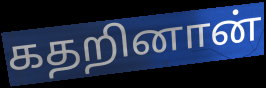
கதறினான்